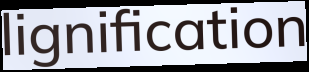
lignification